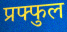
प्रफ्फुल